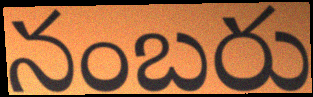
నంబరు